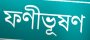
ফণীভূষণ